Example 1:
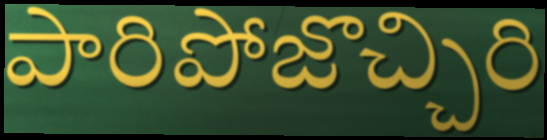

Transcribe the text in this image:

పారిపోజొచ్చిరి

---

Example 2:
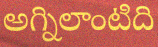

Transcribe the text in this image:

అగ్నిలాంటిది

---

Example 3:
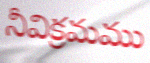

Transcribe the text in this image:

నీవిక్రమము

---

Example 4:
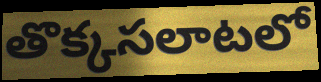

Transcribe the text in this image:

తొక్కసలాటలో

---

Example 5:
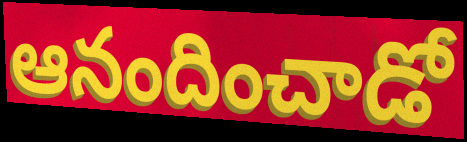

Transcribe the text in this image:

ఆనందించాడో